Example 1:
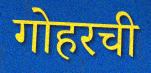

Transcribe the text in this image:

गोहरची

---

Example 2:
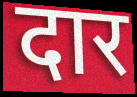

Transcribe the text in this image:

दार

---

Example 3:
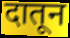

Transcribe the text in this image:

दातून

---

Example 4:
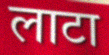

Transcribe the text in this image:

लाटा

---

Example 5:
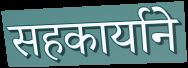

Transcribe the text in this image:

सहकार्याने